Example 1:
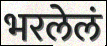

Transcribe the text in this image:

भरलेलं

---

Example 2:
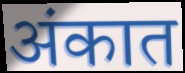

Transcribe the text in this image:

अंकात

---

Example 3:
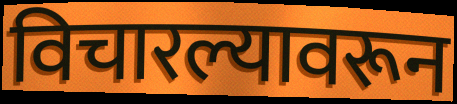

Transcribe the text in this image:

विचारल्यावरून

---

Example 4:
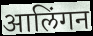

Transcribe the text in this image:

आलिंगन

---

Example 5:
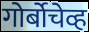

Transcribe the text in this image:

गोर्बोचेव्ह